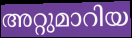
അറ്റുമാറിയ